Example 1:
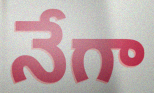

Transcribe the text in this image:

నేగా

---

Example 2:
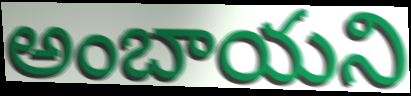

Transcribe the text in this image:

అంబాయని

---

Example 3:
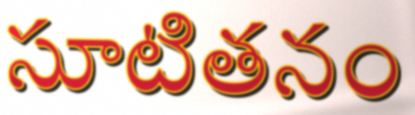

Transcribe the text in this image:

సూటితనం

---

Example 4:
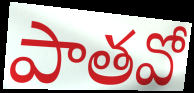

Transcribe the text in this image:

పాతవో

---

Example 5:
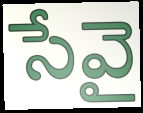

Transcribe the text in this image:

సేవై